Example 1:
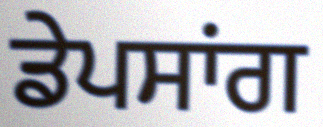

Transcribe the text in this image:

ਡੇਪਸਾਂਗ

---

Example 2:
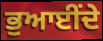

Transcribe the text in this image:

ਭੁਆਈਂਦੇ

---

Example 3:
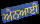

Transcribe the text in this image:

ਐਨਆਈ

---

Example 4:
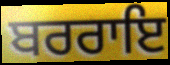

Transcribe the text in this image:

ਬਰਰਾਇ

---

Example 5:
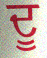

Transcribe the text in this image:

ਦੂ